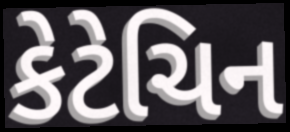
કેટેચિન